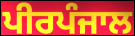
ਪੀਰਪੰਜਾਲ